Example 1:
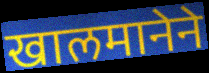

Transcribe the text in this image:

खालमानेने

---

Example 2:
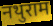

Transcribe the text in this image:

नथुराम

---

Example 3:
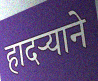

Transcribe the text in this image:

हादऱ्याने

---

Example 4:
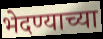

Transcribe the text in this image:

भेदण्याच्या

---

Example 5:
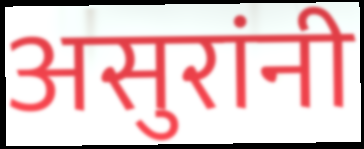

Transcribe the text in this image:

असुरांनी